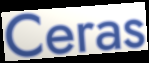
Ceras